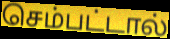
செம்பட்டால்